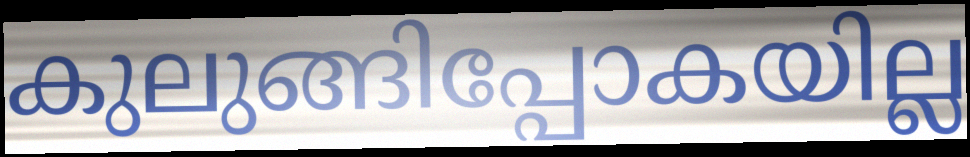
കുലുങ്ങിപ്പോകയില്ല